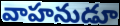
వాహనుడూ